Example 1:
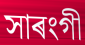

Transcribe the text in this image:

সাৰংগী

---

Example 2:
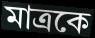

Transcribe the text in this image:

মাত্ৰকে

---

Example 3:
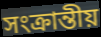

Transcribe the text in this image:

সংক্ৰান্তীয়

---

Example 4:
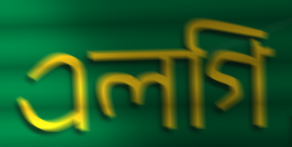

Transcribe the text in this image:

এলগি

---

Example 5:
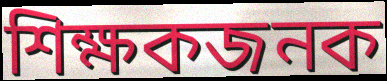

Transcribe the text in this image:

শিক্ষকজনক